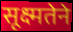
सूक्ष्मतेने